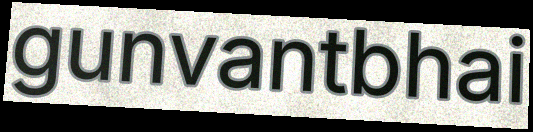
gunvantbhai